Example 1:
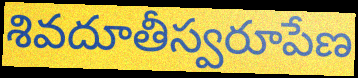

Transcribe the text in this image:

శివదూతీస్వరూపేణ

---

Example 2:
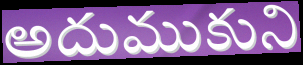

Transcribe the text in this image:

అదుముకుని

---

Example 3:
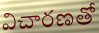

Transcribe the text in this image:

విచారణతో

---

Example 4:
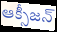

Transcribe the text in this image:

ఆక్సీజన్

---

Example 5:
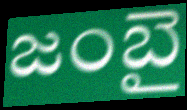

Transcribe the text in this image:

జంబై